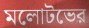
মলোটভের